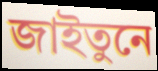
জাইতুনে